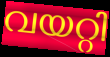
വയറ്റി